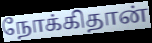
நோக்கிதான்